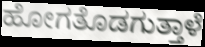
ಹೋಗತೊಡಗುತ್ತಾಳೆ